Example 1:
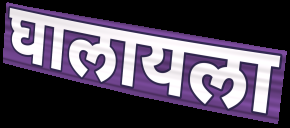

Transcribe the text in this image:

घालायला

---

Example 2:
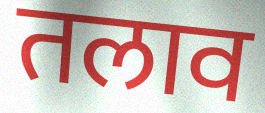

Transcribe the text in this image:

तलाव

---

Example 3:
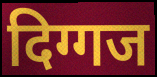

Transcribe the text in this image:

दिग्गज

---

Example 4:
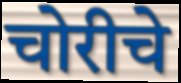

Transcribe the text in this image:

चोरीचे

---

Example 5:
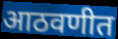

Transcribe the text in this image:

आठवणीत